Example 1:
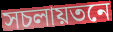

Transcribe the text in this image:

সচলায়তনে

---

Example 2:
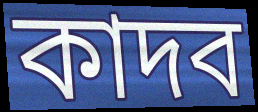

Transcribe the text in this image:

কাদব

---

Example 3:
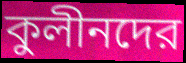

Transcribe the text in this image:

কুলীনদের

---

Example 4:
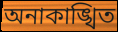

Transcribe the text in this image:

অনাকাঙ্খিত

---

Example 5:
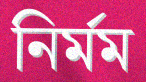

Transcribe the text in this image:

নির্মম